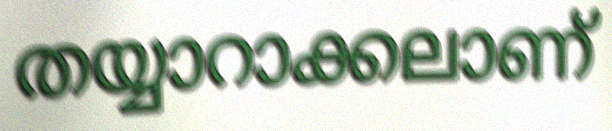
തയ്യാറാക്കലാണ്